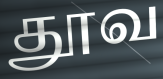
தூவ